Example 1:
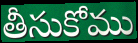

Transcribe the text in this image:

తీసుకోము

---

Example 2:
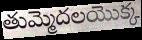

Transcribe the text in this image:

తుమ్మెదలయొక్క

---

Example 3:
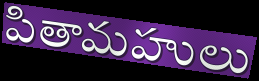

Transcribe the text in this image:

పితామహులు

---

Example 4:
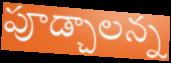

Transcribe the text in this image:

పూడ్చాలన్న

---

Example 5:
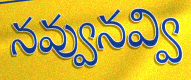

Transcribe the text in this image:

నవ్వునవ్వి